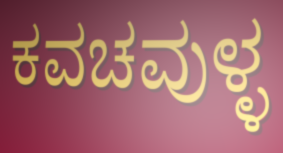
ಕವಚವುಳ್ಳ